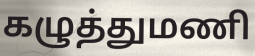
கழுத்துமணி